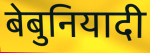
बेबुनियादी